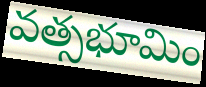
వత్సభూమిం